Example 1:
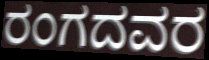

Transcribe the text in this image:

ರಂಗದವರ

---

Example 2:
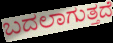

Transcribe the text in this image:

ಬದಲಾಗುತ್ತದೆ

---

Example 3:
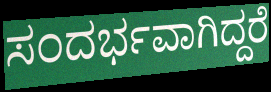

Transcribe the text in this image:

ಸಂದರ್ಭವಾಗಿದ್ದರೆ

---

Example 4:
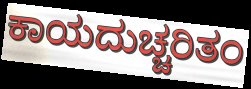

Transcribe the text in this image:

ಕಾಯದುಚ್ಚರಿತಂ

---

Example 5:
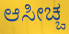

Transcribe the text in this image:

ಆಸೀಚ್ಚ